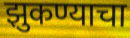
झुकण्याचा